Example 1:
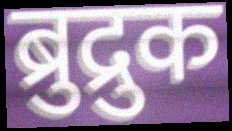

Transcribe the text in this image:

ब्रुद्रुक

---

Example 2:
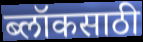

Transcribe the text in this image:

ब्लॉकसाठी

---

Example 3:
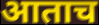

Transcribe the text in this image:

आताच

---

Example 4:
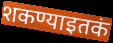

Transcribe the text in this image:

शकण्याइतकं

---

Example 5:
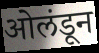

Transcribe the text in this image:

ओलंडून